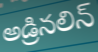
అడ్రినలిన్